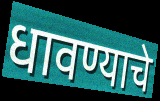
धावण्याचे